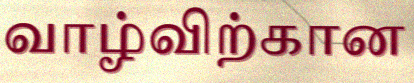
வாழ்விற்கான